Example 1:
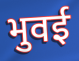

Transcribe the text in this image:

भुवई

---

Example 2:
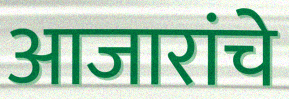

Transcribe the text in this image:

आजारांचे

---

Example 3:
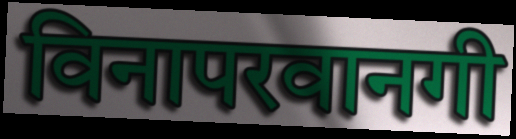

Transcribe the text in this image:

विनापरवानगी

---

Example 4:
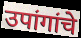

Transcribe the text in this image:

उपांगांचे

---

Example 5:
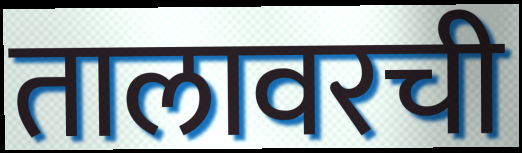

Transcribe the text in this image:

तालावरची